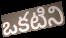
ఒకటిని